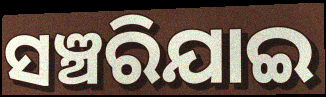
ସଞ୍ଚରିଯାଇ